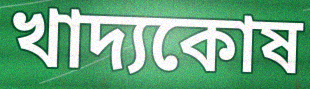
খাদ্যকোষ